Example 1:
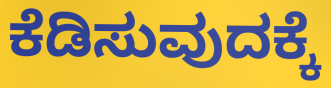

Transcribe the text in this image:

ಕೆಡಿಸುವುದಕ್ಕೆ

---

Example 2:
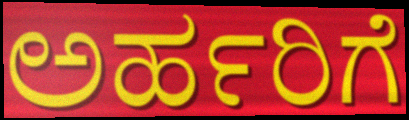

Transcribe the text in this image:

ಅರ್ಹರಿಗೆ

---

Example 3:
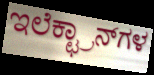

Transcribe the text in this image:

ಇಲೆಕ್ಟ್ರಾನ್‍ಗಳ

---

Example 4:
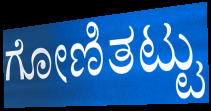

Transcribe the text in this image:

ಗೋಣಿತಟ್ಟು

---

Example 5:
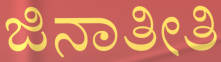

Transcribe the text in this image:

ಜಿನಾತೀತಿ